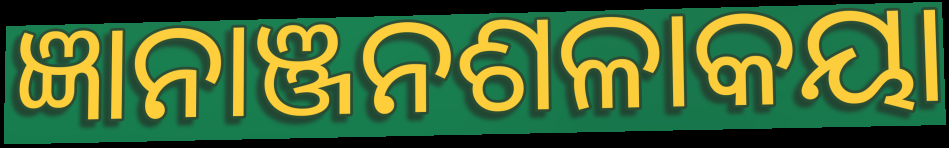
ଜ୍ଞାନାଞ୍ଜନଶଳାକୟା